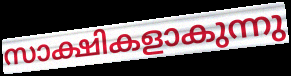
സാക്ഷികളാകുന്നു